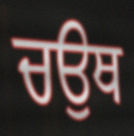
ਚਉਥ